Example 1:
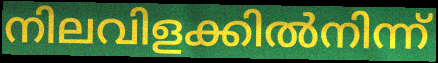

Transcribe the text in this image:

നിലവിളക്കിൽനിന്ന്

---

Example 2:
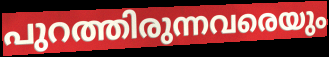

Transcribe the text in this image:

പുറത്തിരുന്നവരെയും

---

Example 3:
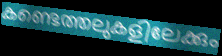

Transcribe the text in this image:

കണ്ടെത്തലുകളിലേക്കും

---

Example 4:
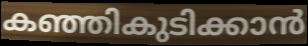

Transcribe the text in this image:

കഞ്ഞികുടിക്കാൻ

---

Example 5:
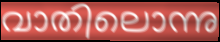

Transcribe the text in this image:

വാതിലൊന്നു